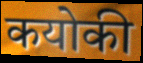
कयोकी